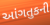
આંગતુકની